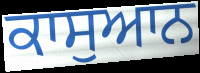
ਕਾਸੁਆਨ